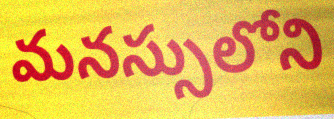
మనస్సులోని